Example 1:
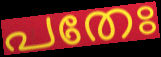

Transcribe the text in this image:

പതേഃ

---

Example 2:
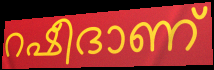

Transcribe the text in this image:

റഷീദാണ്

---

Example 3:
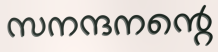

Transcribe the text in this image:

സനന്ദനന്റെ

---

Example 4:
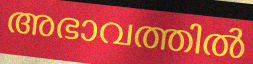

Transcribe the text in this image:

അഭാവത്തിൽ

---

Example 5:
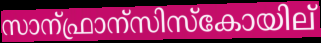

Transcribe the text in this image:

സാന്ഫ്രാന്സിസ്കോയില്